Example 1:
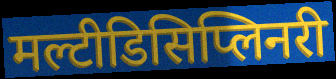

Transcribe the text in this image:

मल्टीडिसिप्लिनरी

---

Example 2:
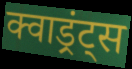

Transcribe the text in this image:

क्वाड्रंट्स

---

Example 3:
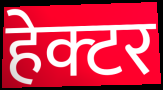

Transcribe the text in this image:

हेक्‍टर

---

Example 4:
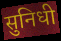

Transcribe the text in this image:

सुनिधी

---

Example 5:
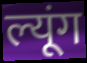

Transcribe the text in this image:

ल्यूंग